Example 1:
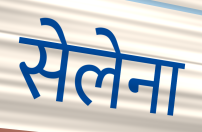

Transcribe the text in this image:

सेलेना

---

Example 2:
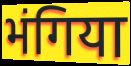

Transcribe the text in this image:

भंगिया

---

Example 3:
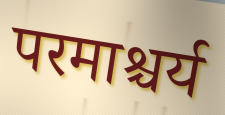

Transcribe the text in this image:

परमाश्चर्य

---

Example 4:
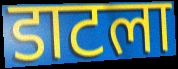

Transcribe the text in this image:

डाटला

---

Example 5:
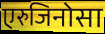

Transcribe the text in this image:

एरुजिनोसा